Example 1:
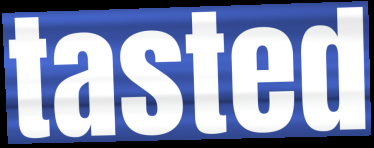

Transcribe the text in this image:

tasted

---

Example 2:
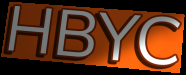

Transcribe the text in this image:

HBYC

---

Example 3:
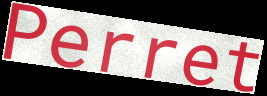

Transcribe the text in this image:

Perret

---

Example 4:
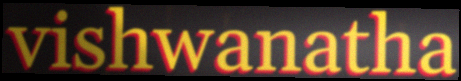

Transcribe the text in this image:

vishwanatha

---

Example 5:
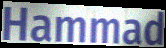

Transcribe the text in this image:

Hammad